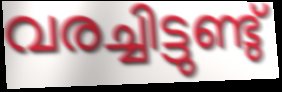
വരച്ചിട്ടുണ്ടു്